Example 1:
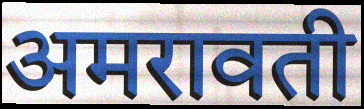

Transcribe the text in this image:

अमरावती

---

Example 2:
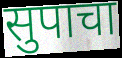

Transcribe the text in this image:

सुपाचा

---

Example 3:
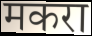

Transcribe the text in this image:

मकरा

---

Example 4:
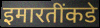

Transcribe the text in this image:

इमारतींकडे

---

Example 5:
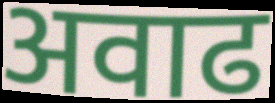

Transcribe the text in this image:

अवाढ